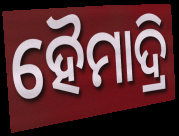
ହୈମାଦ୍ରି